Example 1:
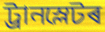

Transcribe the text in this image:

ট্ৰানস্লেটৰ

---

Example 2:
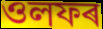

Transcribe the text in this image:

ওলফৰ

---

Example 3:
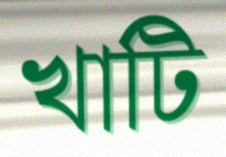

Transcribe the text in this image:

খাটি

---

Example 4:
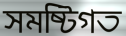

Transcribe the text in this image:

সমষ্টিগত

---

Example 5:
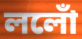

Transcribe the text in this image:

ললোঁ